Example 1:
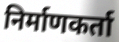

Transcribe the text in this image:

निर्माणकर्ता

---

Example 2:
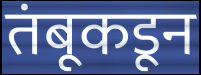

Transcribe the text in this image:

तंबूकडून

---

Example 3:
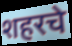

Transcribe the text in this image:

शहरचे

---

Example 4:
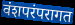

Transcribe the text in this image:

वंशपरंपरागत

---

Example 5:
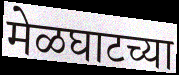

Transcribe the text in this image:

मेळघाटच्या